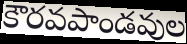
కౌరవపాండవుల